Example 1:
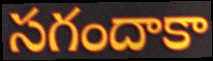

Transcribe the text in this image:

సగందాకా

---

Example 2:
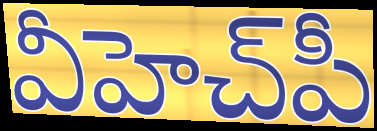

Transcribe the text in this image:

వీహెచ్‌పీ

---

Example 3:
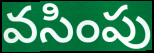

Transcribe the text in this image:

వసింపు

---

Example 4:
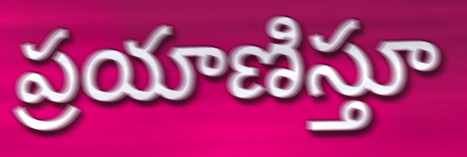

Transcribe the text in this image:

ప్రయాణిస్తూ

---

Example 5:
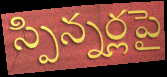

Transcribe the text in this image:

స్పిన్నర్లపై